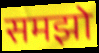
समझो